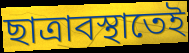
ছাত্রাবস্থাতেই